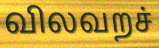
விலவறச்